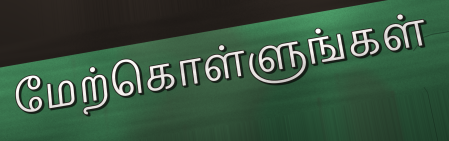
மேற்கொள்ளுங்கள்